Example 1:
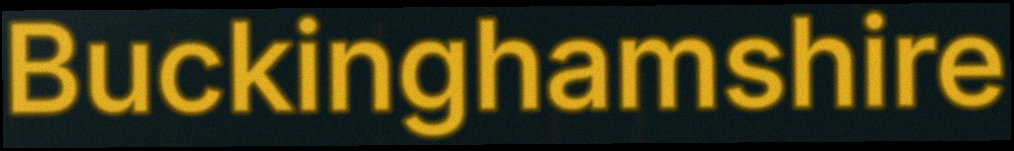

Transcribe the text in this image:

Buckinghamshire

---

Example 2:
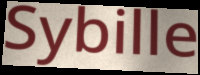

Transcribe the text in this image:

Sybille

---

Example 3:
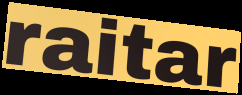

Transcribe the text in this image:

raitar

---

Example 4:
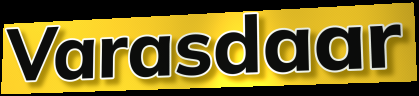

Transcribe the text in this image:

Varasdaar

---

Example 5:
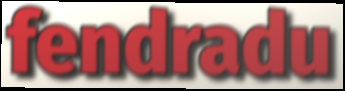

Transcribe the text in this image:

fendradu